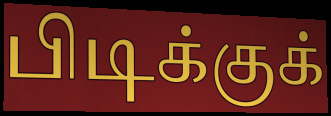
பிடிக்குக்